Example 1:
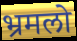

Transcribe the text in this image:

भ्रमलो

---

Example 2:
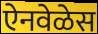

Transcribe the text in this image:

ऐनवेळेस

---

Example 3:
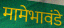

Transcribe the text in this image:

मामेभावंडे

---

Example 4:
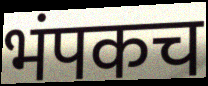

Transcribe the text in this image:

भंपकच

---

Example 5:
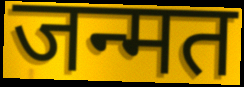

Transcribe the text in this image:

जन्मत